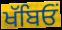
ਖੱਬਿਓਂ